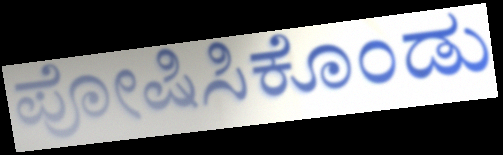
ಪೋಷಿಸಿಕೊಂಡು